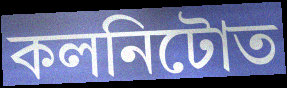
কলনিটোত